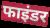
फाइंडर